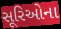
સૂરિઓના